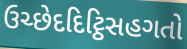
ઉચ્છેદદિટ્ઠિસહગતો